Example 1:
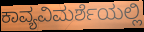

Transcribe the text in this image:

ಕಾವ್ಯವಿಮರ್ಶೆಯಲ್ಲಿ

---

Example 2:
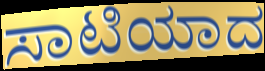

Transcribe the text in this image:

ಸಾಟಿಯಾದ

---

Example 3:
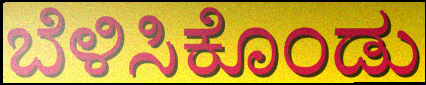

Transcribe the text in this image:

ಬೆಳಿಸಿಕೊಂಡು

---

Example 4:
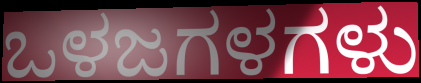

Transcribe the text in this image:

ಒಳಜಗಳಗಳು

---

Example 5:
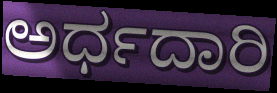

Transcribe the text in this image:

ಅರ್ಧದಾರಿ